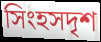
সিংহসদৃশ